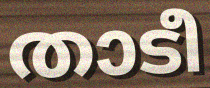
താടീ